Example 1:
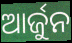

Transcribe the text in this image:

ଆର୍ଜୁନ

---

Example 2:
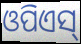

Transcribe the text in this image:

ଓପିଏସ୍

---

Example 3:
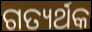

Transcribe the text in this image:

ଗତ୍ୟର୍ଥକ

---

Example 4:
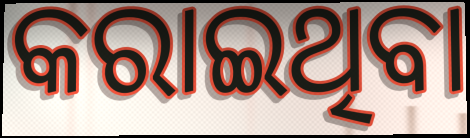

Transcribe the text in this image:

କରାଇଥିବା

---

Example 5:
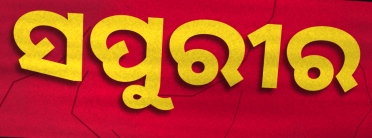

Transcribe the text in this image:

ସପୁରୀର